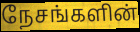
நேசங்களின்